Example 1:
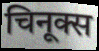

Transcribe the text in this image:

चिनूक्स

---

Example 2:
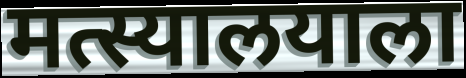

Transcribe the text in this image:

मत्स्यालयाला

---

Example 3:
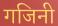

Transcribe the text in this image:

गजिनी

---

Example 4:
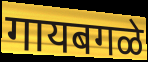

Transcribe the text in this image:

गायबगळे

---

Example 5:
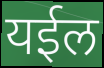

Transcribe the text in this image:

यईल